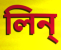
লিন্